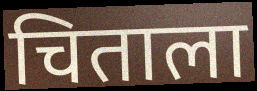
चिताला